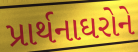
પ્રાર્થનાઘરોને